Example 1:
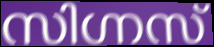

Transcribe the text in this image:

സിഗ്നസ്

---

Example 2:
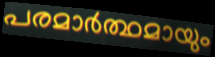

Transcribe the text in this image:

പരമാർത്ഥമായും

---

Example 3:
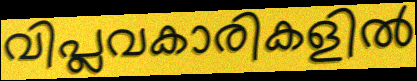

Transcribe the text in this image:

വിപ്ലവകാരികളിൽ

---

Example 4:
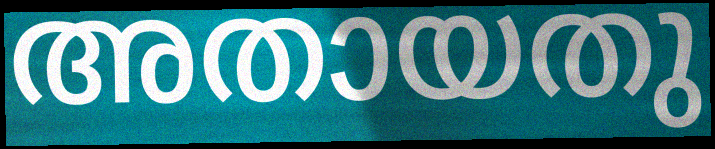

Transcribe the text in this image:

അതായതു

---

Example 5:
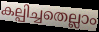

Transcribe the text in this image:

കല്പിച്ചതെല്ലാം